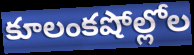
కూలంకషోల్లోల